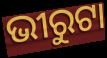
ଭୀରୁଟା